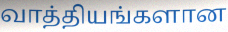
வாத்தியங்களான